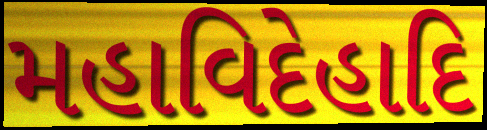
મહાવિદેહાદિ